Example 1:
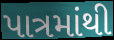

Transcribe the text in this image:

પાત્રમાંથી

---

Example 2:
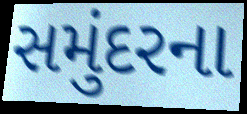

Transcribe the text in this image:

સમુંદરના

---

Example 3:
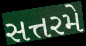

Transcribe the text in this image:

સત્તરમે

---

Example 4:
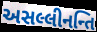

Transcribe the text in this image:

અસલ્લીનન્તિ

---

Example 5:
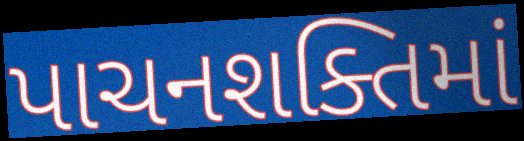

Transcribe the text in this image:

પાચનશક્તિમાં